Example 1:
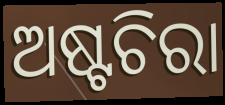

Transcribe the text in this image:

ଅଷ୍ଟଚିରା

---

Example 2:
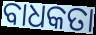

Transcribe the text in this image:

ବାଧକତା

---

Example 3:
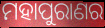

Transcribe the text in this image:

ମହାପୁରାଣର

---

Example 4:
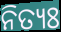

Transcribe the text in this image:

ନିତ୍ଯଃ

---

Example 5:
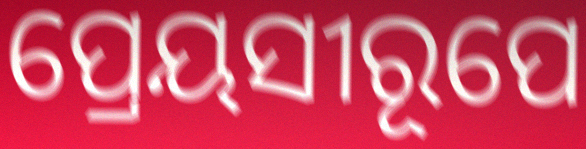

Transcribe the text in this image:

ପ୍ରେୟସୀରୂପେ